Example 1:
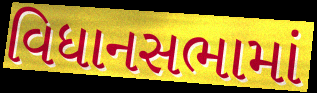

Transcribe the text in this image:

વિધાનસભામાં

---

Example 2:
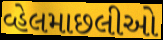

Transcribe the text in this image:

વ્હેલમાછલીઓ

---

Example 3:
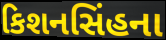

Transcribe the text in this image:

કિશનસિંહના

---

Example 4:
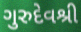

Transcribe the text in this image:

ગુરુદેવશ્રી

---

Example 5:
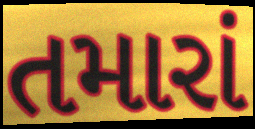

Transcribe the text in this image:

તમારાં